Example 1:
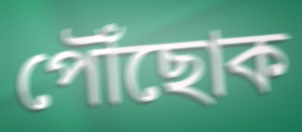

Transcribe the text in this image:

পৌঁছোক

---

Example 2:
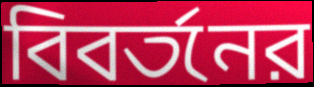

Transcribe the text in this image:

বিবর্তনের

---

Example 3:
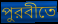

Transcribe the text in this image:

পুরবীতে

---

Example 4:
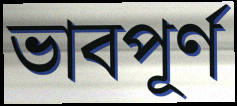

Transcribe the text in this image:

ভাবপূর্ণ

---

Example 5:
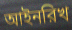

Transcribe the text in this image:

আইনরিখ